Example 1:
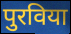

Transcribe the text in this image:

पुरविया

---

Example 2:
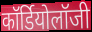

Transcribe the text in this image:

कॉर्डियोलॉजी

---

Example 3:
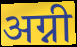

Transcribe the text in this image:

अग्नी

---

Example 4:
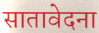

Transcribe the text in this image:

सातावेदना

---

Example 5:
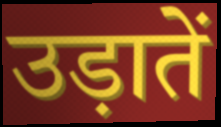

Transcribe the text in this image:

उड़ातें